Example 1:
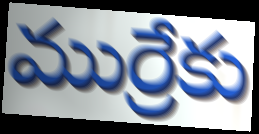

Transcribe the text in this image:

ముర్రేకు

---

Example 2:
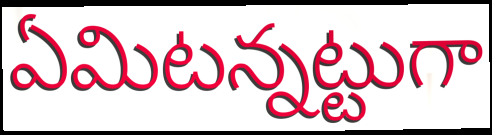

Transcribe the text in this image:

ఏమిటన్నట్టుగా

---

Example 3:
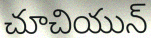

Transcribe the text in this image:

చూచియున్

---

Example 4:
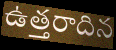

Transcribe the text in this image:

ఉత్తరాదిన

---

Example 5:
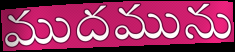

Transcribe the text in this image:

ముదమును